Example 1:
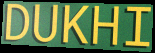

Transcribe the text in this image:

DUKHI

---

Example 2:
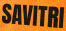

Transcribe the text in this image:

SAVITRI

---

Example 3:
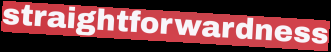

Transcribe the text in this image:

straightforwardness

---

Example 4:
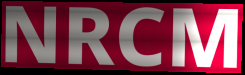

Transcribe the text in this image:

NRCM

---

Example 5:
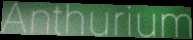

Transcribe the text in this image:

Anthurium